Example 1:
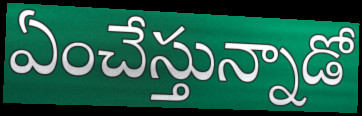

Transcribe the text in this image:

ఏంచేస్తున్నాడో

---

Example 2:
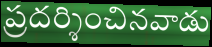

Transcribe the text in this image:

ప్రదర్శించినవాడు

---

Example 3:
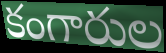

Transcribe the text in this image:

కంగారుల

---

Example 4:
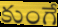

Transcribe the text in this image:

కుంగే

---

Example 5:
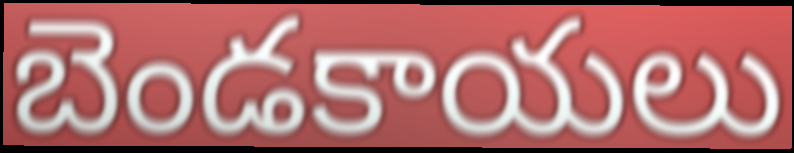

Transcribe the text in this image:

బెండకాయలు